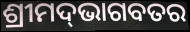
ଶ୍ରୀମଦ୍‌ଭାଗବତର